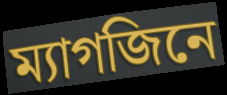
ম্যাগজিনে